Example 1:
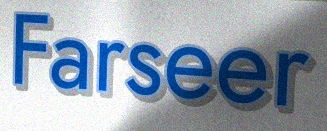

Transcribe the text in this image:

Farseer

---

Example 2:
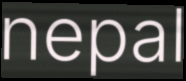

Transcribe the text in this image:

nepal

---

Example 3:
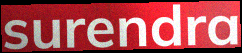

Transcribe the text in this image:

surendra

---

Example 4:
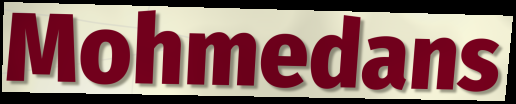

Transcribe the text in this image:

Mohmedans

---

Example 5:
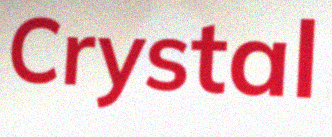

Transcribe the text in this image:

Crystal